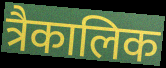
त्रैकालिक